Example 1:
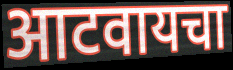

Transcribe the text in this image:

आटवायचा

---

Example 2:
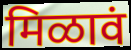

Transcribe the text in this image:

मिळावं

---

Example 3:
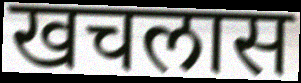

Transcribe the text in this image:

खचलास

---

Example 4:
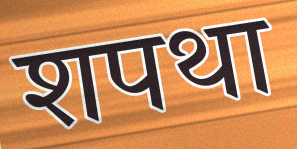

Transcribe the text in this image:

शपथा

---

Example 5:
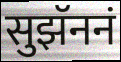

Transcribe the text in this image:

सुझॅननं